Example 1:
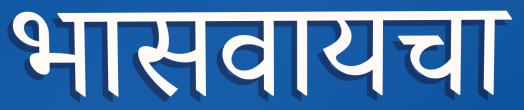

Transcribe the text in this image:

भासवायचा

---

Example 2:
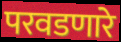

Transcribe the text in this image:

परवडणारे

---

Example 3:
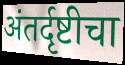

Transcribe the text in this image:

अंतर्दृष्टीचा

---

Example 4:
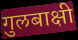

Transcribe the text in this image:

गुलबाक्षी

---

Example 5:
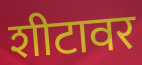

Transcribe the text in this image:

शीटावर